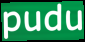
pudu